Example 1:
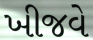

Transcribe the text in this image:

ખીજવે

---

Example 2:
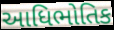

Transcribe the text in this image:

આધિભોતિક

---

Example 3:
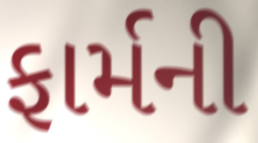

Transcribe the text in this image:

ફાર્મની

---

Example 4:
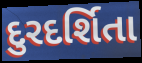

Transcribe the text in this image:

દુરદર્શિતા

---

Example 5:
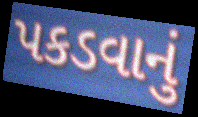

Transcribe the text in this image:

પકડવાનું